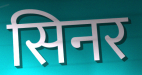
सिनर